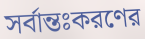
সর্বান্তঃকরণের